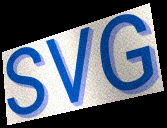
SVG